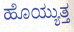
ಹೊಯ್ಯುತ್ತ